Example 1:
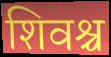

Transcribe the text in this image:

शिवश्च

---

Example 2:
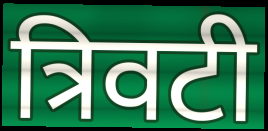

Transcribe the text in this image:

त्रिवटी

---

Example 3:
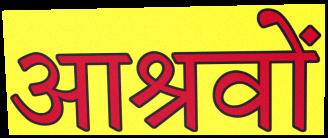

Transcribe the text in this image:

आश्रवों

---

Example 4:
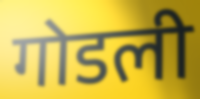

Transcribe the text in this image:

गोडली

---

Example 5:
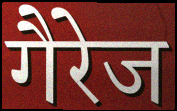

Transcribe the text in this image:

गैरेज